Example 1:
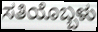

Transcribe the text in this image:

ಸತಿಯೊಬ್ಬಳು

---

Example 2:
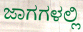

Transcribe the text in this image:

ಜಾಗಗಳಲ್ಲಿ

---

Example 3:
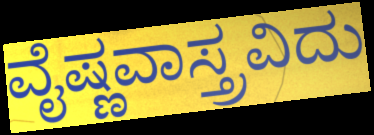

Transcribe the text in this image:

ವೈಷ್ಣವಾಸ್ತ್ರವಿದು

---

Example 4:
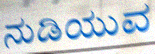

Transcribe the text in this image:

ನುಡಿಯುವ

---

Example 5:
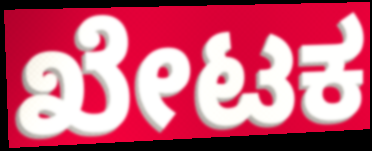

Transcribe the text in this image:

ಖೇಟಕ